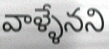
వాళ్ళేనని